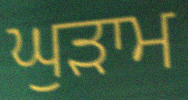
ਘੁੜਾਮ